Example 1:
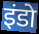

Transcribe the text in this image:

इंडो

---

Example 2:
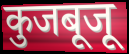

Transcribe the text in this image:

कुजबूजू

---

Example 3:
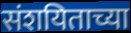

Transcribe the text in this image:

संशयिताच्या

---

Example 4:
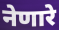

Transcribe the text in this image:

नेणारे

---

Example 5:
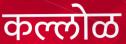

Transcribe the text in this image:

कल्लोळ